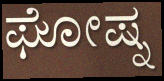
ಘೋಷ್ನ